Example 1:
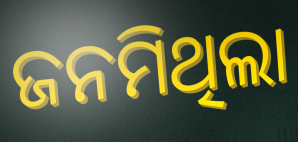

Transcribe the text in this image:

ଜନମିଥିଲା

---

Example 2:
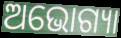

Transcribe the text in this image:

ଅଭୋଗ୍ୟା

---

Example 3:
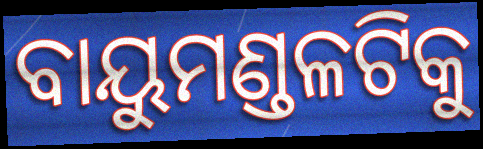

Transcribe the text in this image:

ବାୟୁମଣ୍ଡଳଟିକୁ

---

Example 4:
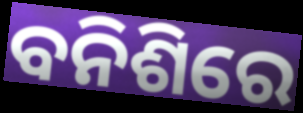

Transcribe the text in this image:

ବନିଶିରେ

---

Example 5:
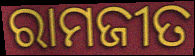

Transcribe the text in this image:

ରାମଜୀତ